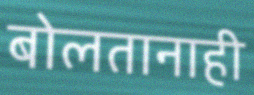
बोलतानाही